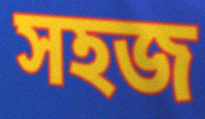
সহজ